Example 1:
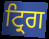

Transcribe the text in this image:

ਟ੍ਰਿਗ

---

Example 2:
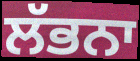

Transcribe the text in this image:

ਲੱਭਨਾ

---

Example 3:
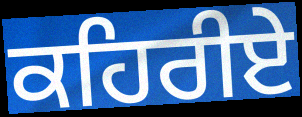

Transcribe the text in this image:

ਕਹਿਰੀਏ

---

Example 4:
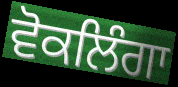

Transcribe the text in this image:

ਵੋਕਲਿੰਗਾ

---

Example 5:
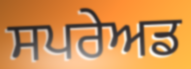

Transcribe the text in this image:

ਸਪਰੇਅਡ